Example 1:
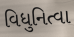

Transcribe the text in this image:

વિધુનિત્વા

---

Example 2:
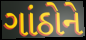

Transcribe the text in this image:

ગાંઠોને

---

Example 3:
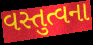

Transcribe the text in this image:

વસ્તુત્વના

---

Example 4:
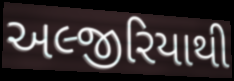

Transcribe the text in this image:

અલ્જીરિયાથી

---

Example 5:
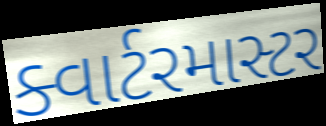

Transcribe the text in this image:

ક્વાર્ટરમાસ્ટર